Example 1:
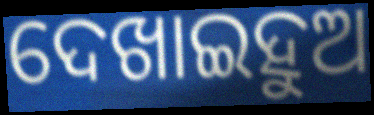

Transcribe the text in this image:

ଦେଖାଇହୁଅ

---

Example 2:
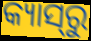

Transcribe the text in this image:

କ୍ୟାସ୍‌ରୁ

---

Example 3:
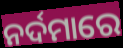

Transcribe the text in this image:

ନର୍ଦମାରେ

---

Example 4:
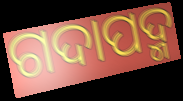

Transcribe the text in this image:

ଗଦାପଦ୍ମ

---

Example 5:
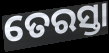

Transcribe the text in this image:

ତେରସ୍ତା